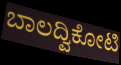
ಬಾಲದ್ವಿಕೋಟಿ